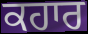
ਕਹਾਰ